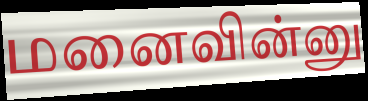
மனைவின்னு